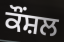
ਕੌਂਸ਼ਲ